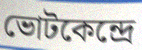
ভোটকেন্দ্রে